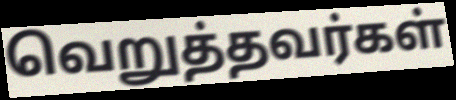
வெறுத்தவர்கள்